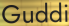
Guddi